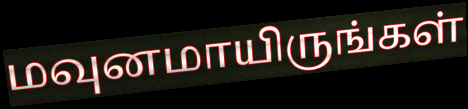
மவுனமாயிருங்கள்